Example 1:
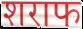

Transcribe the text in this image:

शराफ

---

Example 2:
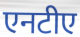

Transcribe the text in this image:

एनटीए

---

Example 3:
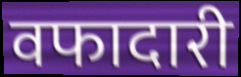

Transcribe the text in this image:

वफादारी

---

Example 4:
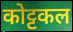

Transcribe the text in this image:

कोट्टकल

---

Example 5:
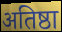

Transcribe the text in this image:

अतिष्ठा